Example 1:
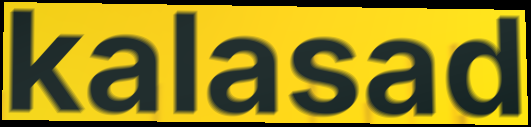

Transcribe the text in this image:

kalasad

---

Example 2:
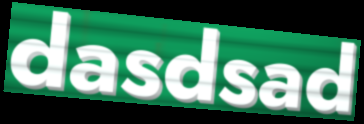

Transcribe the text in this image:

dasdsad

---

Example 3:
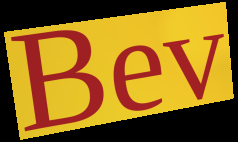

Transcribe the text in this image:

Bev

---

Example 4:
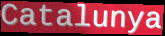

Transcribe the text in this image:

Catalunya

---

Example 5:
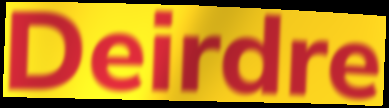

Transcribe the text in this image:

Deirdre